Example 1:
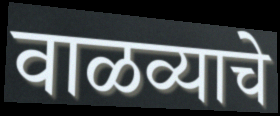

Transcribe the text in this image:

वाळव्याचे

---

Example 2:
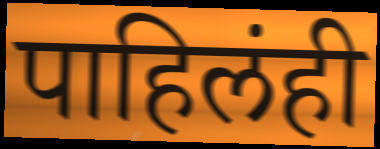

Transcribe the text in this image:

पाहिलंही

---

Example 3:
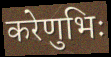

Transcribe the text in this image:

करेणुभिः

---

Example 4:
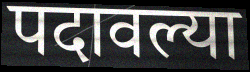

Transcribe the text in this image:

पदावल्या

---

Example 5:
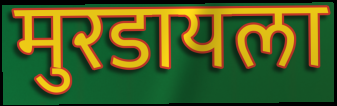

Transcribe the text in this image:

मुरडायला